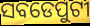
ସବଡେପୁଟୀ